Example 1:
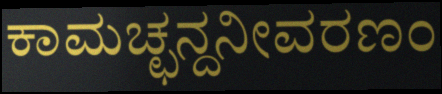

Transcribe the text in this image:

ಕಾಮಚ್ಛನ್ದನೀವರಣಂ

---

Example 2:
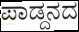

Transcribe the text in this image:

ಪಾಡ್ದನದ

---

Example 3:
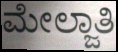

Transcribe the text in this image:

ಮೇಲ್ಜಾತಿ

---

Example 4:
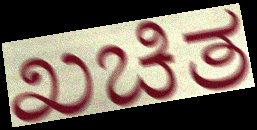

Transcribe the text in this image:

ಖಚಿತ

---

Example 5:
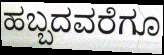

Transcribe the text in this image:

ಹಬ್ಬದವರೆಗೂ